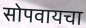
सोपवायचा